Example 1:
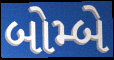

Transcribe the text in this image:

બોમ્બે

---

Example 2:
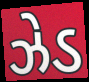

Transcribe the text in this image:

ઝેડ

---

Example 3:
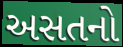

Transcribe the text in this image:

અસતનો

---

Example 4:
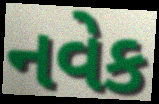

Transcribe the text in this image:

નવેક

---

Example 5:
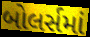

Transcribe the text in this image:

બોલર્સમાં